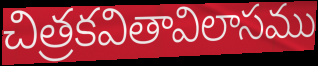
చిత్రకవితావిలాసము